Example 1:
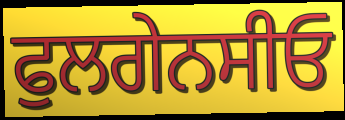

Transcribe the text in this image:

ਫੁਲਗੇਨਸੀਓ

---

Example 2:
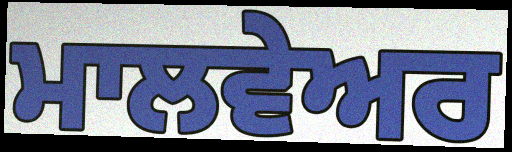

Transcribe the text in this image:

ਮਾਲਵੇਅਰ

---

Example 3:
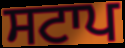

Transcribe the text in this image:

ਸਟਾਪ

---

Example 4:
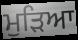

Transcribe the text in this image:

ਮੁੜਿਆ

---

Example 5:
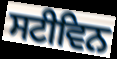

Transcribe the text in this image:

ਸਟੀਵਿਨ